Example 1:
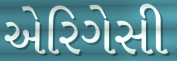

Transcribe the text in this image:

એરિગેસી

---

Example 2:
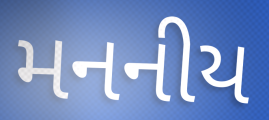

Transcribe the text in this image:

મનનીય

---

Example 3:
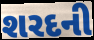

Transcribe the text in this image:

શરદની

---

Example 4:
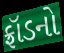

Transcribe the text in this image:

ફ્રૉડનો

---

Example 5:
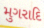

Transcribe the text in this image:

મુગરાદિ